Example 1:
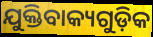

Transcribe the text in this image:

ଯୁକ୍ତିବାକ୍ୟଗୁଡ଼ିକ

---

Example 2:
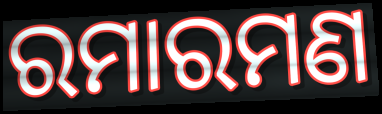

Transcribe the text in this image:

ରମାରମଣ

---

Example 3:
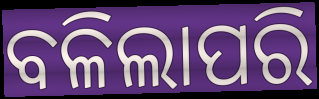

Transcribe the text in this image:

ବଳିଲାପରି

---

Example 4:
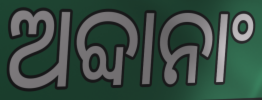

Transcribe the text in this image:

ଅବ୍ଦାନାଂ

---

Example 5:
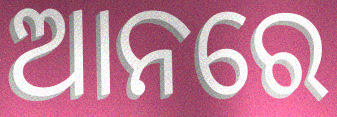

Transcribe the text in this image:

ଆନରେ